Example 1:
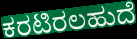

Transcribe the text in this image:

ಕರಟಿರಲಹುದೆ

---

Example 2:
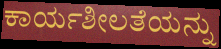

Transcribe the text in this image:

ಕಾರ್ಯಶೀಲತೆಯನ್ನು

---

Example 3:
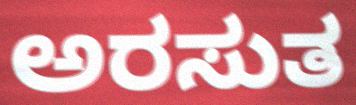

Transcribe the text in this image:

ಅರಸುತ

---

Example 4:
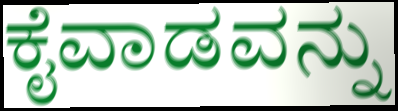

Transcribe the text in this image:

ಕೈವಾಡವನ್ನು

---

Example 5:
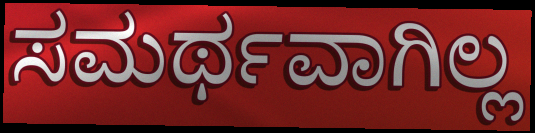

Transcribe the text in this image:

ಸಮರ್ಥವಾಗಿಲ್ಲ